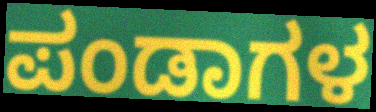
ಪಂಡಾಗಳ